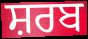
ਸ਼ਰਬ